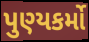
પુણ્યકર્મો